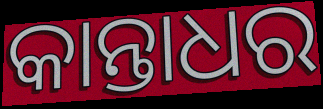
କାନ୍ତାଧର